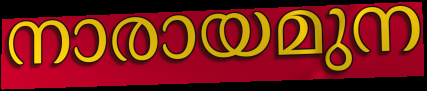
നാരായമുന